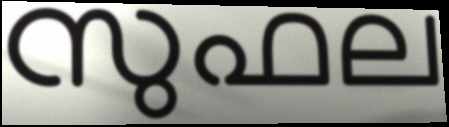
സുഫല